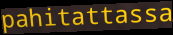
pahitattassa